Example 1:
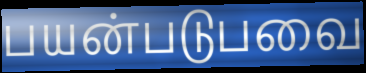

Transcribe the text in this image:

பயன்படுபவை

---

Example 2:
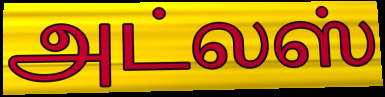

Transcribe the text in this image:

அட்லஸ்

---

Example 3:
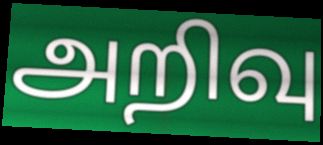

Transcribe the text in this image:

அறிவு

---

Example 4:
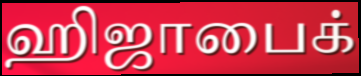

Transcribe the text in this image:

ஹிஜாபைக்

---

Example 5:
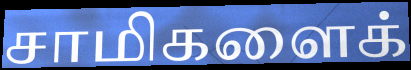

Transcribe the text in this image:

சாமிகளைக்